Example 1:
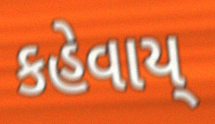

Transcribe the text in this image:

કહેવાય્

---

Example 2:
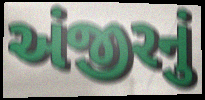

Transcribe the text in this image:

અંજીરનું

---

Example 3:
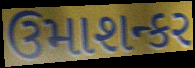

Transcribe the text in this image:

ઉમાશન્કર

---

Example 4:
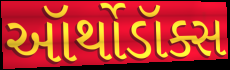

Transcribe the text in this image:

ઑર્થોડૉક્સ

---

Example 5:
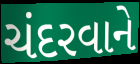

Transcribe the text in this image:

ચંદરવાને